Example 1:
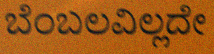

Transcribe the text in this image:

ಬೆಂಬಲವಿಲ್ಲದೇ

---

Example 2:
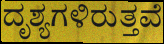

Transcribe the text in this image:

ದೃಶ್ಯಗಳಿರುತ್ತವೆ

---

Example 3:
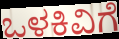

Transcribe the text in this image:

ಒಳಕಿವಿಗೆ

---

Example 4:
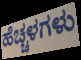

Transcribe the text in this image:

ಹೆಚ್ಚಳಗಳು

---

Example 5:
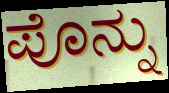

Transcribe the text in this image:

ಪೊನ್ನು